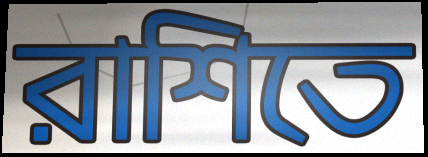
রাশিতে